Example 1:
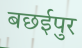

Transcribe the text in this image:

बछईपुर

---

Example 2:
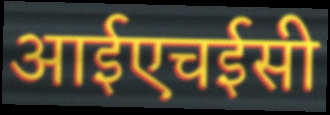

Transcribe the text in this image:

आईएचईसी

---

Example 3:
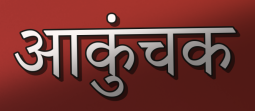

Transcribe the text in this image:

आकुंचक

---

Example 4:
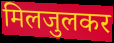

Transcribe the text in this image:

मिलजुलकर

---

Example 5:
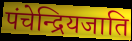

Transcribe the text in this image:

पंचेन्द्रियजाति